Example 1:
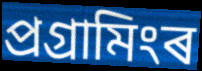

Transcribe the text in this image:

প্ৰগ্ৰামিংৰ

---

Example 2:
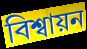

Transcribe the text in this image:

বিশ্বায়ন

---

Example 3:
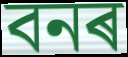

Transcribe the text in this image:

বনৰ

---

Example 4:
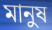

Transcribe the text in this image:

মানুষ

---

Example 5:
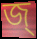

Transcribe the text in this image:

জ্